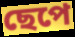
ছেপে